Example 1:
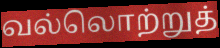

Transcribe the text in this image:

வல்லொற்றுத்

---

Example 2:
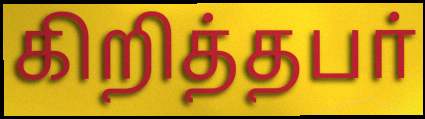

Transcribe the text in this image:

கிறித்தபர்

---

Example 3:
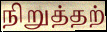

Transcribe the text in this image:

நிறுத்தற்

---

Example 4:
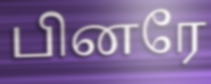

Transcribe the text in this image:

பினரே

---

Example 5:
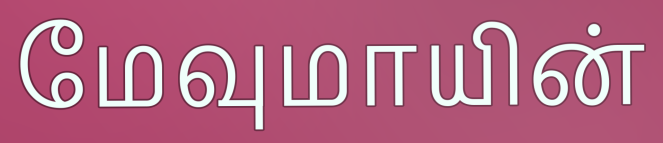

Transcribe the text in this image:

மேவுமாயின்